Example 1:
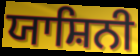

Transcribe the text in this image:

ਯਾਸ਼ਿਨੀ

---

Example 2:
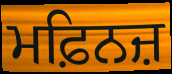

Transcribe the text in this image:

ਮਫ਼ਿਨਜ਼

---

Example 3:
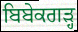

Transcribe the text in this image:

ਬਿਬੇਕਗੜ੍ਹ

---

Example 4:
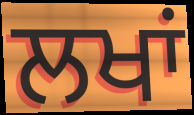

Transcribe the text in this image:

ਲਖਾਂ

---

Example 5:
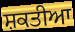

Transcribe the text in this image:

ਸ਼ਕਤੀਆ